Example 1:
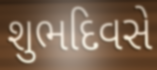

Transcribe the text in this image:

શુભદિવસે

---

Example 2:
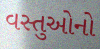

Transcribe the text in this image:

વસ્તુઓનો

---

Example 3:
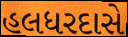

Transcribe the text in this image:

હલધરદાસે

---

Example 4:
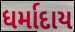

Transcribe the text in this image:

ધર્માદાય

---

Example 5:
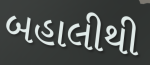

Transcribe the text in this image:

બહાલીથી